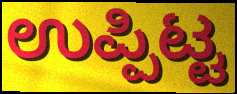
ಉಪ್ಪಿಟ್ಟ